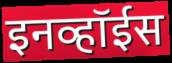
इनव्हॉईस